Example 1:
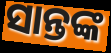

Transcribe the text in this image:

ସାନ୍ତଙ୍କ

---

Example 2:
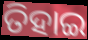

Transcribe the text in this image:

ତିହାଇ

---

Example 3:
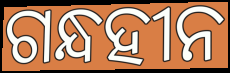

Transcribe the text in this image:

ଗନ୍ଧହୀନ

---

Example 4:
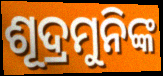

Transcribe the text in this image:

ଶୂଦ୍ରମୁନିଙ୍କ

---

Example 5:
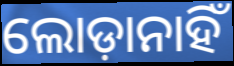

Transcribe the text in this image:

ଲୋଡ଼ାନାହିଁ